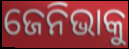
ଜେନିଭାକୁ